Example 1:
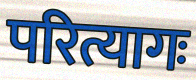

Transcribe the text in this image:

परित्यागः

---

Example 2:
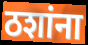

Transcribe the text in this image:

ठशांना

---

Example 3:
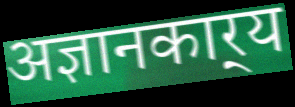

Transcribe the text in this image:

अज्ञानकार्य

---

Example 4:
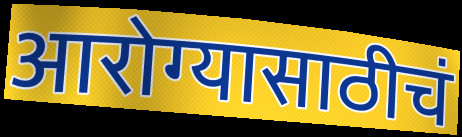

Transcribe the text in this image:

आरोग्यासाठीचं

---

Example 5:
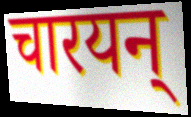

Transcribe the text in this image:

चारयन्